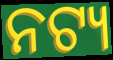
ନଟ୍ୟ